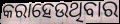
କରାହେଉଥିବାର